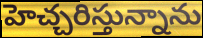
హెచ్చరిస్తున్నాను